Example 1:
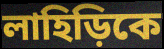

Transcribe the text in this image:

লাহিড়িকে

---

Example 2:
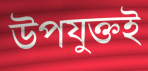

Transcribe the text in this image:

উপযুক্তই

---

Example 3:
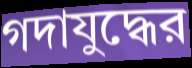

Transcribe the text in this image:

গদাযুদ্ধের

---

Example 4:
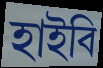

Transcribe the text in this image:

হাইবি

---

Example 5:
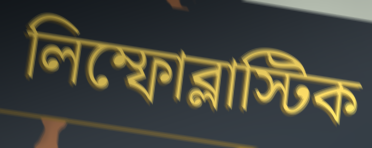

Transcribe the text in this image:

লিম্ফোব্লাস্টিক